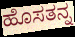
ಹೊಸತನ್ನ